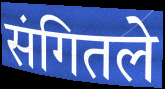
संगितले